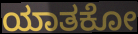
ಯಾತಕೋ